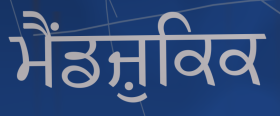
ਮੈਂਡਜ਼ੁਕਿਕ